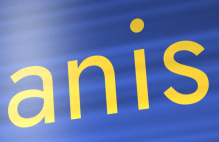
anis